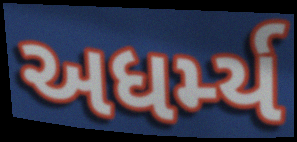
અધર્મ્ય